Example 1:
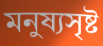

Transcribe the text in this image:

মনুষ্যসৃষ্ট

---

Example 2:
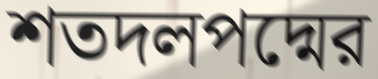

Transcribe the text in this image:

শতদলপদ্মের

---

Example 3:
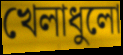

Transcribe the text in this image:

খেলাধুলো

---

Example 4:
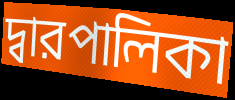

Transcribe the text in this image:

দ্বারপালিকা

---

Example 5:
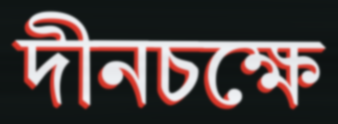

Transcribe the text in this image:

দীনচক্ষে